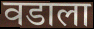
वडाला